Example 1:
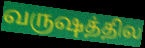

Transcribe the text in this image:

வருஷத்தில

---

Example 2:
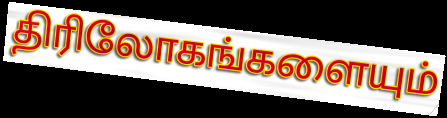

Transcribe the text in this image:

திரிலோகங்களையும்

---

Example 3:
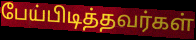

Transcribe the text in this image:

பேய்பிடித்தவர்கள்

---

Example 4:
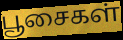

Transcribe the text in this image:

பூசைகள்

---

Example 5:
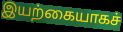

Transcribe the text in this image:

இயற்கையாகச்